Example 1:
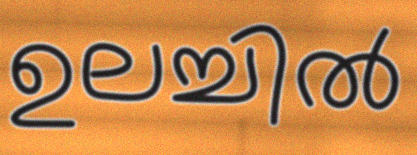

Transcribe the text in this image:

ഉലച്ചിൽ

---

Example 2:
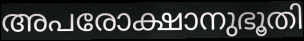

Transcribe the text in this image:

അപരോക്ഷാനുഭൂതി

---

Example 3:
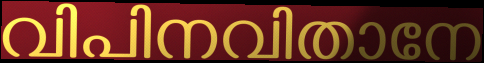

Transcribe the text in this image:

വിപിനവിതാനേ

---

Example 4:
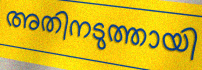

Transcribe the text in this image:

അതിനടുത്തായി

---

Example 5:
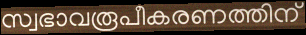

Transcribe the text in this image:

സ്വഭാവരൂപീകരണത്തിന്